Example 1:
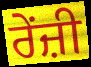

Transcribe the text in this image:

ਰੇਂਜ਼ੀ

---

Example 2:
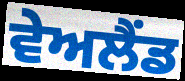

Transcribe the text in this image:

ਵੇਅਲੈਂਡ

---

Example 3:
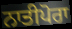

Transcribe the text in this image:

ਨਾਤੀਪੋਰਾ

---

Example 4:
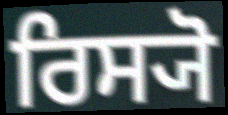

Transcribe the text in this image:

ਰਿਸ੍ਯੋ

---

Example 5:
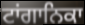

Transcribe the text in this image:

ਟਾਂਗਾਨਿਕਾ